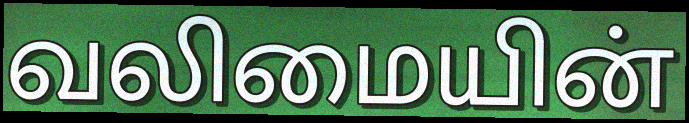
வலிமையின்